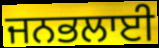
ਜਨਭਲਾਈ